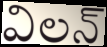
విలన్